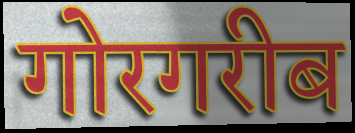
गोरगरीब